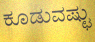
ಕೂಡುವಷ್ಟು